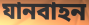
যানবাহন